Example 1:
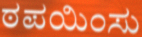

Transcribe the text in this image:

ಠಪಯಿಂಸು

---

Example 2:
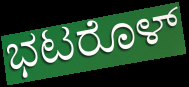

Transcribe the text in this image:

ಭಟರೊಳ್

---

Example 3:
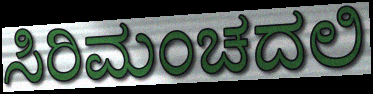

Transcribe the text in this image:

ಸಿರಿಮಂಚದಲಿ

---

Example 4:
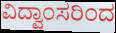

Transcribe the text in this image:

ವಿದ್ವಾಂಸರಿಂದ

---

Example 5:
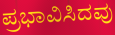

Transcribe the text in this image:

ಪ್ರಭಾವಿಸಿದವು